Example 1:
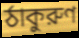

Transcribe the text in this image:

ঠাকুৰুণ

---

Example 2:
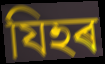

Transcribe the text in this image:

যিহৰ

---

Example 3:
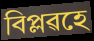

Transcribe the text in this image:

বিপ্লৱহে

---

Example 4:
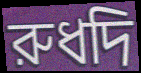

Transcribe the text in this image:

ৰুধদি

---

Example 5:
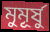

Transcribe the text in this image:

মুমূৰ্ষু